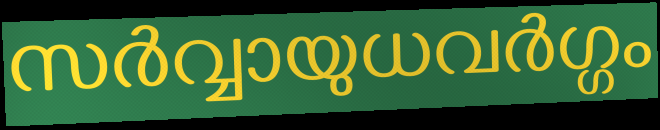
സർവ്വായുധവർഗ്ഗം